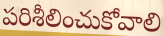
పరిశీలించుకోవాలి